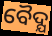
ବୈଦ୍ଯ